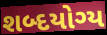
શબ્દયોગ્ય